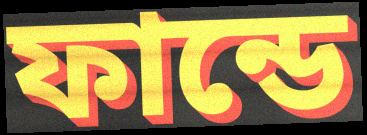
ফান্ডে